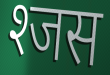
श्जस